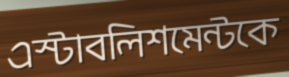
এস্টাবলিশমেন্টকে